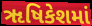
ૠષિકેશમાં